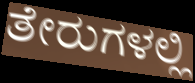
ತೇರುಗಳಲ್ಲಿ